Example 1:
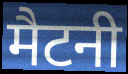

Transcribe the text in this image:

मैटनी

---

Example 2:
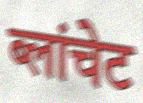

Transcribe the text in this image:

ब्लांचेट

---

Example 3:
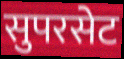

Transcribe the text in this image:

सुपरसेट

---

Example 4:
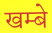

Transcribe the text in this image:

खम्बे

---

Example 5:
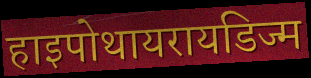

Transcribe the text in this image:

हाइपोथायरायडिज्म